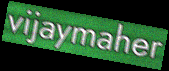
vijaymaher